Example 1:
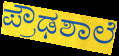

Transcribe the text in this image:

ಪ್ರೌಢಶಾಲೆ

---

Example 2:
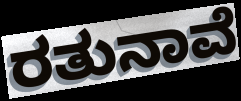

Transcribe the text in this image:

ರತುನಾವೆ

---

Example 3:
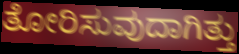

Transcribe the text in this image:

ತೋರಿಸುವುದಾಗಿತ್ತು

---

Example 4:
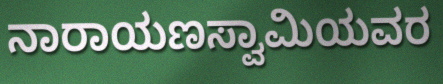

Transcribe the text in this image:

ನಾರಾಯಣಸ್ವಾಮಿಯವರ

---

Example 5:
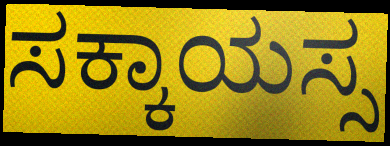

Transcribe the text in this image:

ಸಕ್ಕಾಯಸ್ಸ